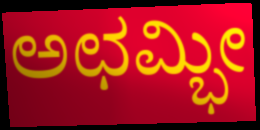
ಅಛಮ್ಭೀ